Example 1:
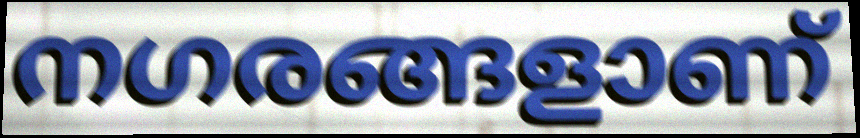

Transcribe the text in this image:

നഗരങ്ങളാണ്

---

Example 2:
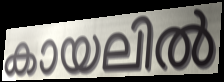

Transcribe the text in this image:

കായലിൽ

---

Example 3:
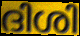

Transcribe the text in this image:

ദിശി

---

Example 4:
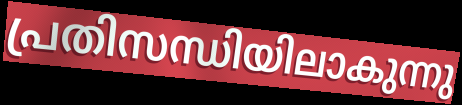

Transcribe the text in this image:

പ്രതിസന്ധിയിലാകുന്നു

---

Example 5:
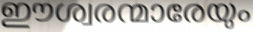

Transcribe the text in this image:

ഈശ്വരന്മാരേയും